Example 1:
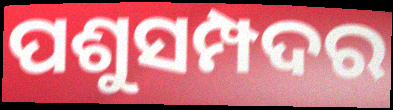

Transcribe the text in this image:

ପଶୁସମ୍ପଦର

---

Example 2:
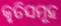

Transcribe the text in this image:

କୃତିସମୂହ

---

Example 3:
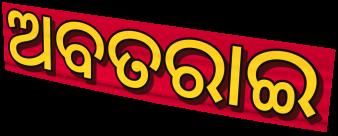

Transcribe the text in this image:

ଅବତରାଇ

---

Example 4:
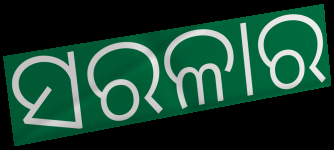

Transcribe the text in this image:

ସରଳାର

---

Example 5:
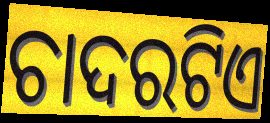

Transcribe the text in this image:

ଚାଦରଟିଏ